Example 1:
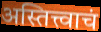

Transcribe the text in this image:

अस्तित्त्वाचं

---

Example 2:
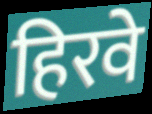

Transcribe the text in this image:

हिरवे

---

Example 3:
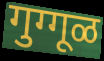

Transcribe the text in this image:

गुग्गूळ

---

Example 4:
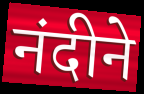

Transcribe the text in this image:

नंदीने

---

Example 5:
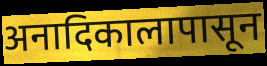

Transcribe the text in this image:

अनादिकालापासून